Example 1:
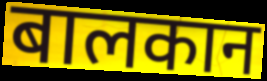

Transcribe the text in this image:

बालकान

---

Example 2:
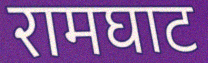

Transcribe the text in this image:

रामघाट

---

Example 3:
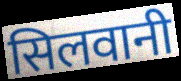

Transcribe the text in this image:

सिलवानी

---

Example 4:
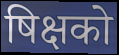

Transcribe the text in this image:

षिक्षको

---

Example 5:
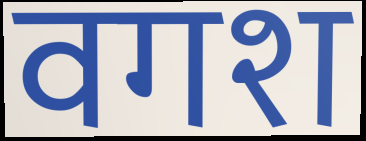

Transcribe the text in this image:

वगश